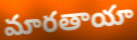
మారతాయా